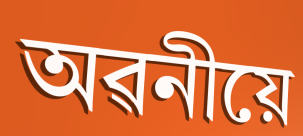
অৱনীয়ে